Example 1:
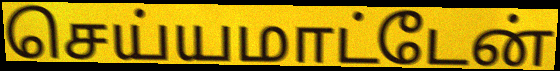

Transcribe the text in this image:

செய்யமாட்டேன்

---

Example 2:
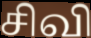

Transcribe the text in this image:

சிவி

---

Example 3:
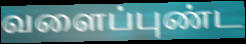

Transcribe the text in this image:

வளைப்புண்ட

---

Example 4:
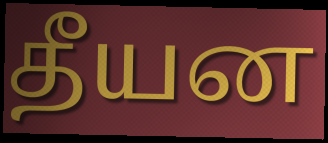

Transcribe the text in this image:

தீயன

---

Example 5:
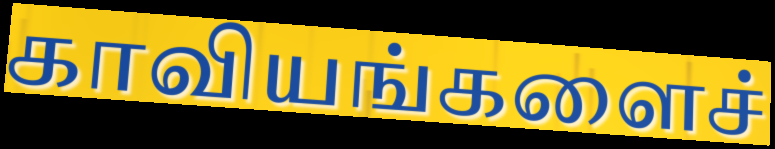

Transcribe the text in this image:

காவியங்களைச்